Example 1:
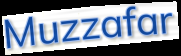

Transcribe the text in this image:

Muzzafar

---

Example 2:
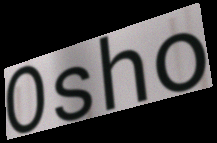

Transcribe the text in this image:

Osho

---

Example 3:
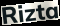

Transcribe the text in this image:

Rizta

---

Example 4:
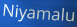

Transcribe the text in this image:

Niyamalu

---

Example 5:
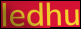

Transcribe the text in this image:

ledhu